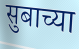
सुबाच्या